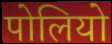
पोलियो